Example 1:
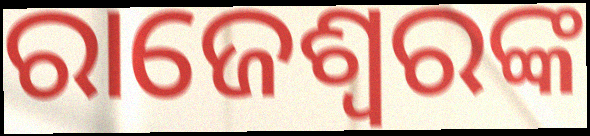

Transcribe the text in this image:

ରାଜେଶ୍ୱରଙ୍କ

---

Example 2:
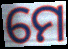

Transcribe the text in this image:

ମେ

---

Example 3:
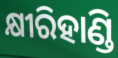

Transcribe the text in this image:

କ୍ଷୀରିହାଣ୍ଡି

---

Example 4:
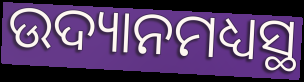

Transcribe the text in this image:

ଉଦ୍ୟାନମଧ୍ୟସ୍ଥ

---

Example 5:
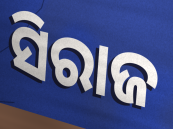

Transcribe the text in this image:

ସିରାଜ